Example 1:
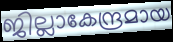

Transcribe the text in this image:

ജില്ലാകേന്ദ്രമായ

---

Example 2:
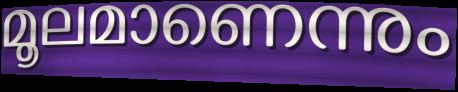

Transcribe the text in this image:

മൂലമാണെന്നും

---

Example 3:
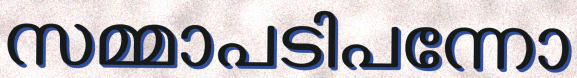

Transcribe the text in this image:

സമ്മാപടിപന്നോ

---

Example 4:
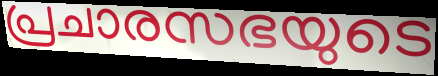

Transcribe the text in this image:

പ്രചാരസഭയുടെ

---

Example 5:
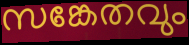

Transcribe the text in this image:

സങ്കേതവും